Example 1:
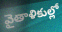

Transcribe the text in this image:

వైతాళికుల్లో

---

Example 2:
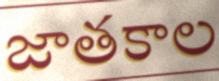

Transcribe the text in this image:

జాతకాల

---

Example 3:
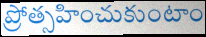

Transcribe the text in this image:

ప్రోత్సహించుకుంటాం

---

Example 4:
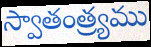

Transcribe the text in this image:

స్వాతంత్ర్యము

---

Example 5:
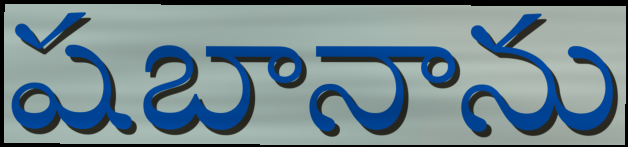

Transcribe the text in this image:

షబానాను